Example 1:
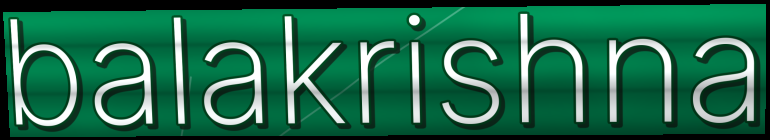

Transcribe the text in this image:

balakrishna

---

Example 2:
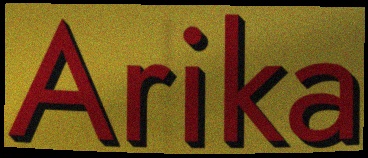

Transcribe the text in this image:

Arika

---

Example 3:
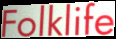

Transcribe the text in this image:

Folklife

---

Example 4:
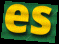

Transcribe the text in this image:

es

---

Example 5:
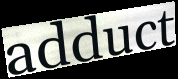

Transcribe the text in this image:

adduct